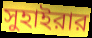
সুহাইরার